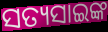
ସତ୍ୟସାଇଙ୍କ